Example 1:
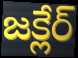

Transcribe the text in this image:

జక్లేర్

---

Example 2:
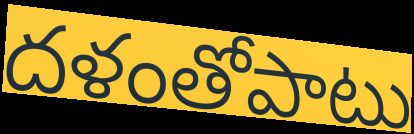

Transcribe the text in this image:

దళంతోపాటు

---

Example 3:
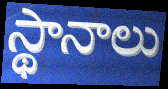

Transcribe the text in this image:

స్థానాలు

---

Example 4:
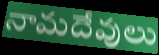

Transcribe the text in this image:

నామదేవులు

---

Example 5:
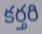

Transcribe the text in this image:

కర్తరి